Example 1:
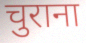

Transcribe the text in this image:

चुराना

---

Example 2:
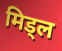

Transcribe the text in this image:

मिड्ल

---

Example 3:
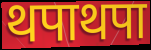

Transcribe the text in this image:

थपाथपा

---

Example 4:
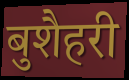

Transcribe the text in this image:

बुशैहरी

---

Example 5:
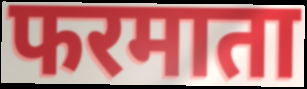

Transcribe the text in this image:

फरमाता